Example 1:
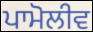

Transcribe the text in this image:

ਪਾਮੋਲੀਵ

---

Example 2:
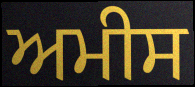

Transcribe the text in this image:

ਅਮੀਸ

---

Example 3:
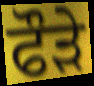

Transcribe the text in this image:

ਫੌੜੇ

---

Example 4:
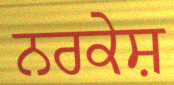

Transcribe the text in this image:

ਨਰਕੇਸ਼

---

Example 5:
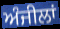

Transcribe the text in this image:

ਅੰਜੀਲਾਂ